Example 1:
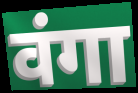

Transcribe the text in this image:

वंगा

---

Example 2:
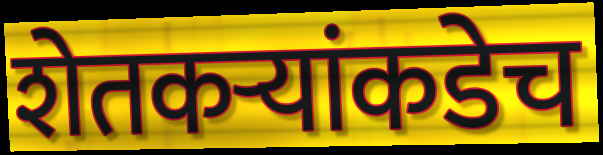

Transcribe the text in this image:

शेतकऱ्यांकडेच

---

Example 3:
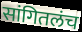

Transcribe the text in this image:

सांगितलंच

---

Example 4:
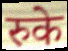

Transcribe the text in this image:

रुके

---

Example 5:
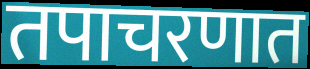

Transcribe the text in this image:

तपाचरणात